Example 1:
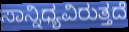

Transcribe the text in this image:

ಸಾನ್ನಿಧ್ಯವಿರುತ್ತದೆ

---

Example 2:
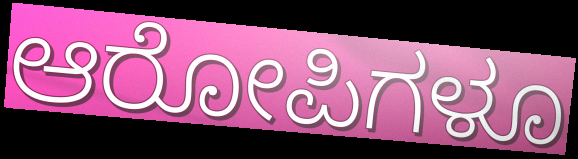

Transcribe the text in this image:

ಆರೋಪಿಗಳೂ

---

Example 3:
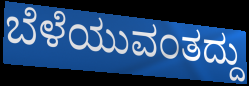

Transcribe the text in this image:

ಬೆಳೆಯುವಂತದ್ದು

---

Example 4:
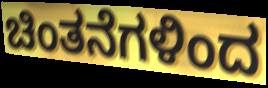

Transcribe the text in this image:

ಚಿಂತನೆಗಳಿಂದ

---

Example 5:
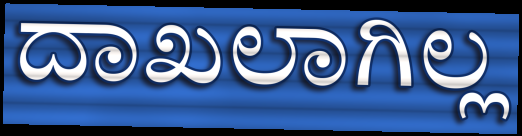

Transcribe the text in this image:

ದಾಖಲಾಗಿಲ್ಲ